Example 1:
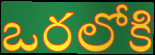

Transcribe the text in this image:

ఒరలోకి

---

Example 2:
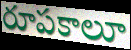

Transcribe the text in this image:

రూపకాలూ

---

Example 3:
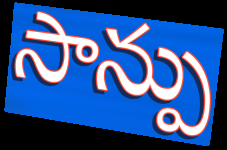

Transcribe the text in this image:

సాన్పు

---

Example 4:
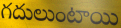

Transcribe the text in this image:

గదులుంటాయి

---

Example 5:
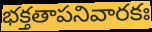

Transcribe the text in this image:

భక్తతాపనివారకః